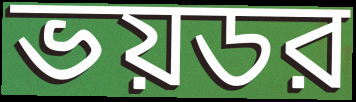
ভয়ডর